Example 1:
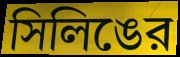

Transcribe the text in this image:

সিলিঙের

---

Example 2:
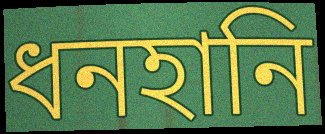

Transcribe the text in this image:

ধনহানি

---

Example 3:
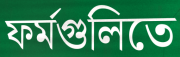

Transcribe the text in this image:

ফর্মগুলিতে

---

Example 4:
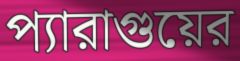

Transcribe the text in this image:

প্যারাগুয়ের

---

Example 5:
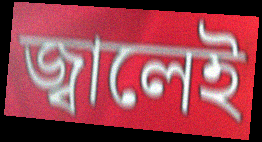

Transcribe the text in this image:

জ্বালেই